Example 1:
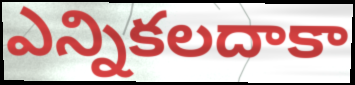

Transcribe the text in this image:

ఎన్నికలదాకా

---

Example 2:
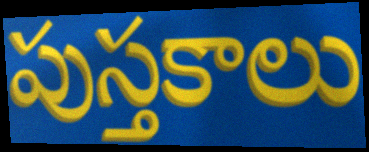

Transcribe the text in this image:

పుస్తకాలు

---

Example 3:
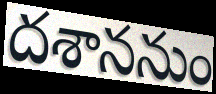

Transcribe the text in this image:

దశాననుం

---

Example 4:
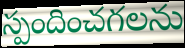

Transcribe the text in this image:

స్పందించగలను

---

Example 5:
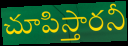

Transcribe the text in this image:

చూపిస్తారనీ